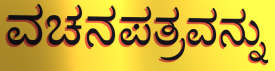
ವಚನಪತ್ರವನ್ನು